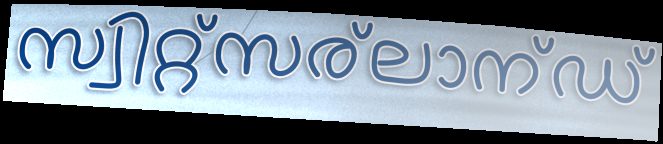
സ്വിറ്റ്സര്ലാന്ഡ്